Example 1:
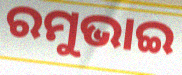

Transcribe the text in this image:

ରମୁଭାଇ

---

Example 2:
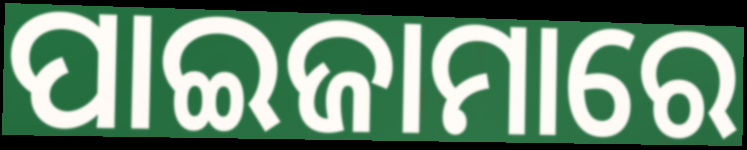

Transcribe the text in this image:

ପାଇଜାମାରେ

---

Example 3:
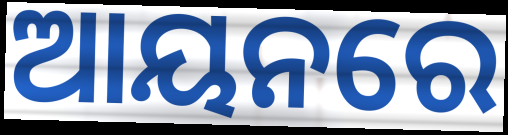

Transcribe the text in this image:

ଆୟନରେ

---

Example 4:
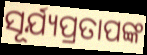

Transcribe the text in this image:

ସୂର୍ଯ୍ୟପ୍ରତାପଙ୍କ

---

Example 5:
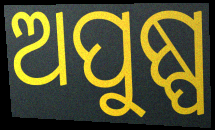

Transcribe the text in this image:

ଅପୁଷ୍ପ